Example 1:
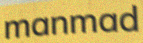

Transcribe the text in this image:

manmad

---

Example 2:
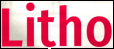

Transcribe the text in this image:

Litho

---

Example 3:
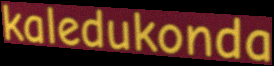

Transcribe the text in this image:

kaledukonda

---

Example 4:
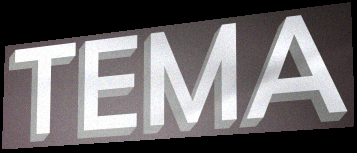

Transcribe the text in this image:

TEMA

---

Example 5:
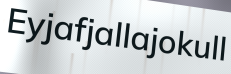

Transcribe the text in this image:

Eyjafjallajokull